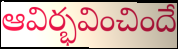
ఆవిర్భవించిందే